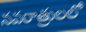
నవరాత్రులలో